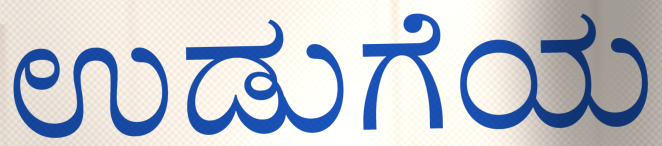
ಉಡುಗೆಯ